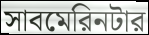
সাবমেরিনটার